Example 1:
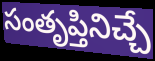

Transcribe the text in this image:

సంతృప్తినిచ్చే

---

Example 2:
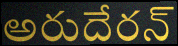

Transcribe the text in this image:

అరుదేరన్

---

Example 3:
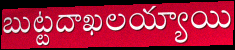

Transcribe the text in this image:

బుట్టదాఖలయ్యాయి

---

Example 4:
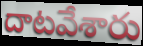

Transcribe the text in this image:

దాటవేశారు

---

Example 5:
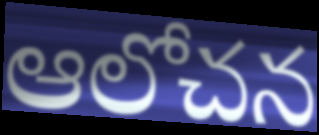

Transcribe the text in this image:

ఆలోచన